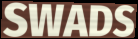
SWADS